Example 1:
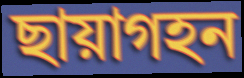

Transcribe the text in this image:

ছায়াগহন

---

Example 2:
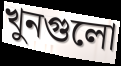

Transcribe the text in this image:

খুনগুলো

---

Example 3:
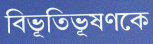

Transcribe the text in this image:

বিভূতিভূষণকে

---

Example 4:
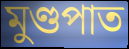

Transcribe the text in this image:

মুণ্ডপাত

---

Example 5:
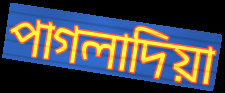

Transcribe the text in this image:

পাগলাদিয়া